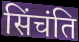
सिंचंति